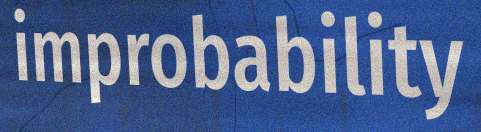
improbability